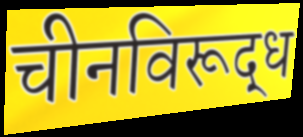
चीनविरूद्ध